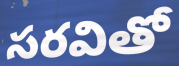
సరవితో